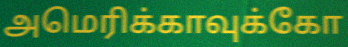
அமெரிக்காவுக்கோ